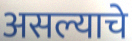
असल्‍याचे